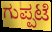
ಗುಪ್ಪಟೆ